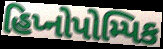
હિપ્નોપોમ્પિક